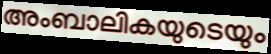
അംബാലികയുടെയും